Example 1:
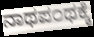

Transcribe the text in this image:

ನಾಥಪಂಥಕ್ಕೆ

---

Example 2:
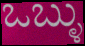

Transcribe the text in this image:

ಒಬ್ಳು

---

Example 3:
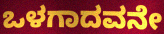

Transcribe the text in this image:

ಒಳಗಾದವನೇ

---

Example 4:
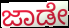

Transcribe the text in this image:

ಜಾಡೇ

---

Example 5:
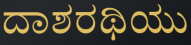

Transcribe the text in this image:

ದಾಶರಥಿಯು